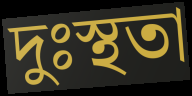
দুঃস্থতা